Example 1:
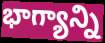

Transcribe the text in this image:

భాగ్యాన్ని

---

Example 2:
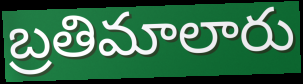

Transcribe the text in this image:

బ్రతిమాలారు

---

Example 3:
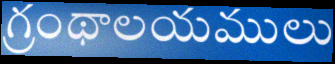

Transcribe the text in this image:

గ్రంథాలయములు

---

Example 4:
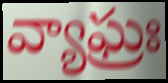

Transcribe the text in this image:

వ్యాఘ్రః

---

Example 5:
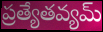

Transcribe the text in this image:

ప్రత్యేతవ్యమ్